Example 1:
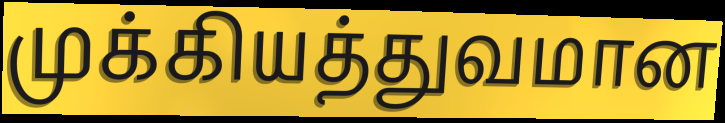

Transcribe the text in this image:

முக்கியத்துவமான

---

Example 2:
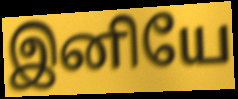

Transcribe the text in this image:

இனியே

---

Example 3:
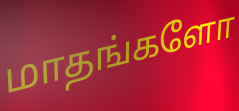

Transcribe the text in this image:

மாதங்களோ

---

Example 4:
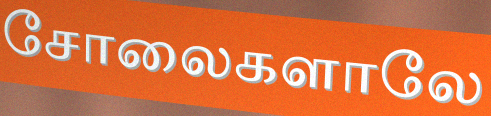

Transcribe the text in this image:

சோலைகளாலே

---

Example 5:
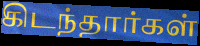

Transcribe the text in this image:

கிடந்தார்கள்